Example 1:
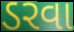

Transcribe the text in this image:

ડરવા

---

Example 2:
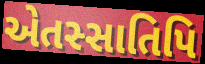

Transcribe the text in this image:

એતસ્સાતિપિ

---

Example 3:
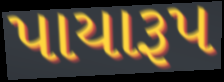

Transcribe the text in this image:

પાયારૂપ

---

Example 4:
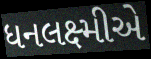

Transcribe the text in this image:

ધનલક્ષ્મીએ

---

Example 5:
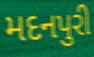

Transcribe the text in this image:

મદનપુરી